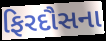
ફિરદૌસના